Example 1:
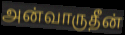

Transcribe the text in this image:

அன்வாருதீன்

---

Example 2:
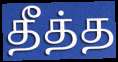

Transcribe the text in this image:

தீத்த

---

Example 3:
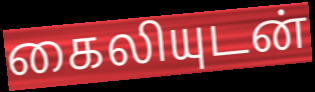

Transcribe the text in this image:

கைலியுடன்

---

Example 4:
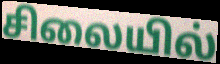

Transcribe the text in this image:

சிலையில்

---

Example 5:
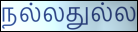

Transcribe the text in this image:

நல்லதுல்ல